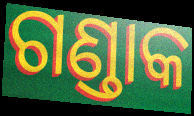
ଗଣ୍ଡାକ